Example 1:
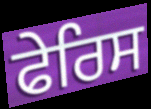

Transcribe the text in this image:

ਫੇਰਿਸ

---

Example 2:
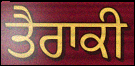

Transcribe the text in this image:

ਤੈਰਾਕੀ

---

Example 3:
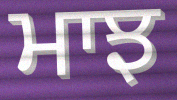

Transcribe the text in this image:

ਮਾਝ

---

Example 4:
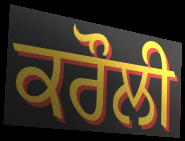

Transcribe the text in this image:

ਕਰੌਲੀ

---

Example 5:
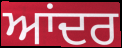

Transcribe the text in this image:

ਆਂਦਰ